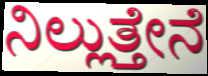
ನಿಲ್ಲುತ್ತೇನೆ